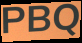
PBQ